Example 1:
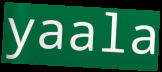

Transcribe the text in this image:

yaala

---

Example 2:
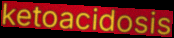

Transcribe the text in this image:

ketoacidosis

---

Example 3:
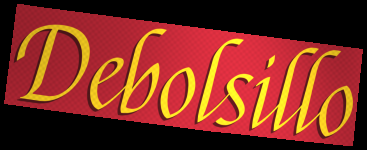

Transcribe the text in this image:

Debolsillo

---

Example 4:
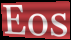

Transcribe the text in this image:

Eos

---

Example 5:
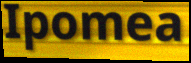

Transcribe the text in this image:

Ipomea